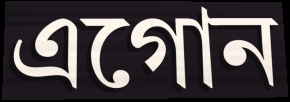
এগোন